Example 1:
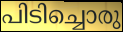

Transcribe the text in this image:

പിടിച്ചൊരു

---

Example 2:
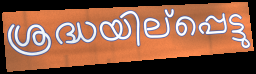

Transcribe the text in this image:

ശ്രദ്ധയില്പ്പെട്ടു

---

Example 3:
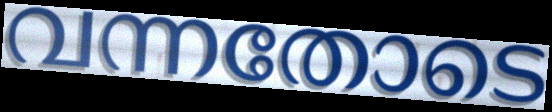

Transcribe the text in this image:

വന്നതോടെ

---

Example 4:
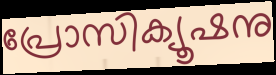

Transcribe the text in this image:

പ്രോസിക്യൂഷനു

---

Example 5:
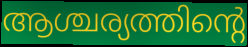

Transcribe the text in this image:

ആശ്ചര്യത്തിന്റെ